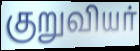
குறுவியர்